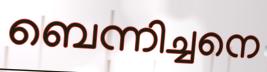
ബെന്നിച്ചനെ